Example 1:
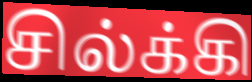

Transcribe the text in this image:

சில்க்கி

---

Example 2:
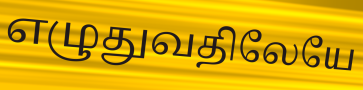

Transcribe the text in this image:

எழுதுவதிலேயே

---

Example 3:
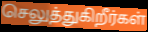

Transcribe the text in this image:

செலுத்துகிறீர்கள்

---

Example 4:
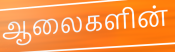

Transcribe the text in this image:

ஆலைகளின்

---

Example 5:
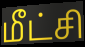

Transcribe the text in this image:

மீட்சி